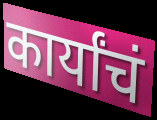
कार्यांचं